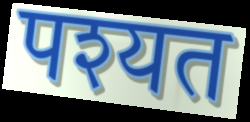
पश्यत